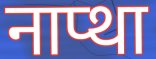
नाप्था